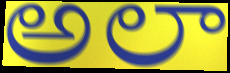
అలా